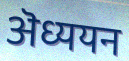
ऄध्ययन